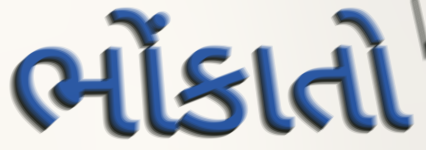
ભોંકાતો